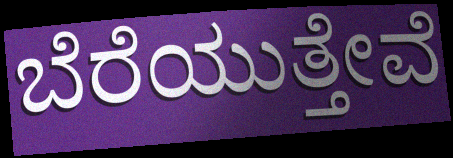
ಬೆರೆಯುತ್ತೇವೆ